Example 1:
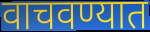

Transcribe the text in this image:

वाचवण्यात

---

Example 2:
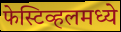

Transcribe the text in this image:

फेस्टिव्हलमध्ये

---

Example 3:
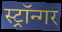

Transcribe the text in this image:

स्ट्रॉन्गर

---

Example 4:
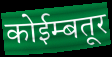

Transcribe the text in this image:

कोईम्बतूर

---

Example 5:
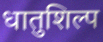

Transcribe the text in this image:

धातुशिल्प